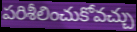
పరిశీలించుకోవచ్చు